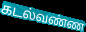
கடல்வண்ண